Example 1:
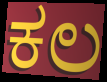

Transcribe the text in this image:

ಕಲ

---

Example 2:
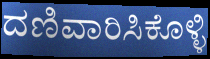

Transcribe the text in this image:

ದಣಿವಾರಿಸಿಕೊಳ್ಳಿ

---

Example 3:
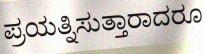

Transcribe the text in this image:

ಪ್ರಯತ್ನಿಸುತ್ತಾರಾದರೂ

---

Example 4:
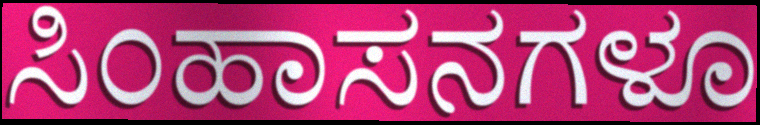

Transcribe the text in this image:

ಸಿಂಹಾಸನಗಳೂ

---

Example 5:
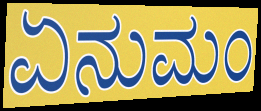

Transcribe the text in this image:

ಏನುಮಂ